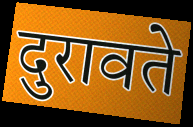
दुरावते